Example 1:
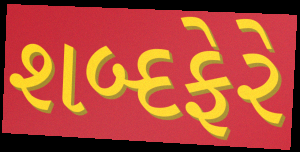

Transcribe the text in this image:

શબ્દફેરે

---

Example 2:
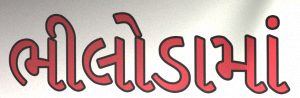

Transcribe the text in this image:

ભીલોડામાં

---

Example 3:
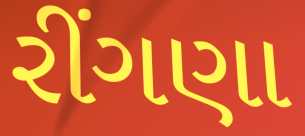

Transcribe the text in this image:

રીંગણા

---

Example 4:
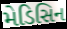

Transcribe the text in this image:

મેડિસિન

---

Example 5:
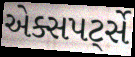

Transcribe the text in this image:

એક્સપર્ટ્સે